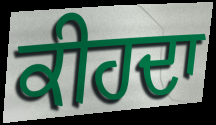
ਕੀਹਦਾ